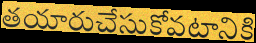
తయారుచేసుకోవటానికి